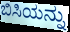
ಬಿಸಿಯನ್ನು